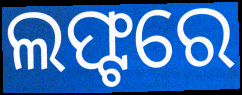
ଲଫ୍ଟରେ